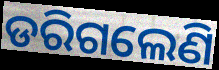
ଡରିଗଲେଣି